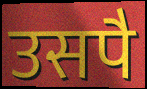
उसपै